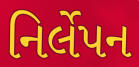
નિર્લેપન